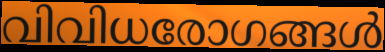
വിവിധരോഗങ്ങൾ